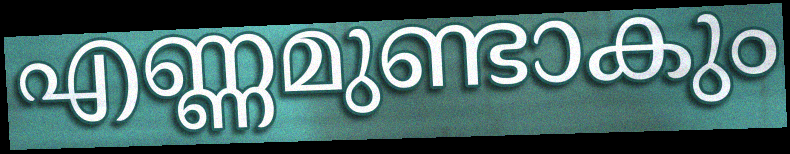
എണ്ണമുണ്ടാകും